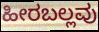
ಹೀರಬಲ್ಲವು